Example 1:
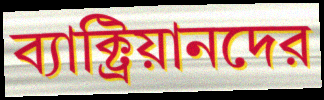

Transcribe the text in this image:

ব্যাক্ট্রিয়ানদের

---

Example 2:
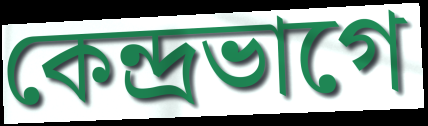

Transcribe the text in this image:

কেন্দ্রভাগে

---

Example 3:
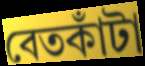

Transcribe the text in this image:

বেতকাঁটা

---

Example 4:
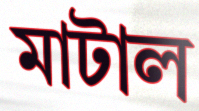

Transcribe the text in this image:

মাটাল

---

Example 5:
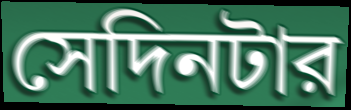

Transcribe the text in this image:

সেদিনটার